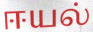
ஈயல்